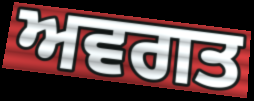
ਅਵਗਤ